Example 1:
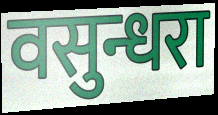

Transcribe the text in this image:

वसुन्धरा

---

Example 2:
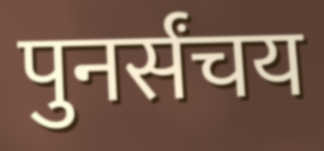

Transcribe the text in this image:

पुनर्संचय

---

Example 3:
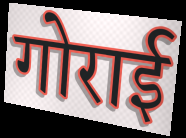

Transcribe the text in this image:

गोराई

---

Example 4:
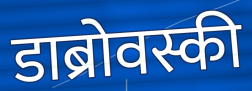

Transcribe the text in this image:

डाब्रोवस्की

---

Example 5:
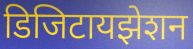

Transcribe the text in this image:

डिजिटायझेशन